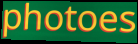
photoes